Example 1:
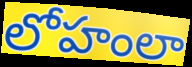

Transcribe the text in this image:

లోహంలా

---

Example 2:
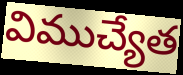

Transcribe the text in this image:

విముచ్యేత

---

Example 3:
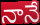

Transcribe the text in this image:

నానే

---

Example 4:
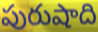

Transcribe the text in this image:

పురుషాది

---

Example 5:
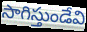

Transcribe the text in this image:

సాగిస్తుండేవి